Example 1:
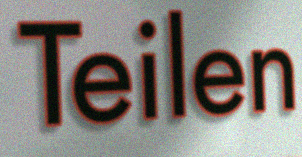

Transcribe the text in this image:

Teilen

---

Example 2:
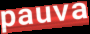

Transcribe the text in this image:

pauva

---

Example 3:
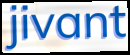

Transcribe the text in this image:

jivant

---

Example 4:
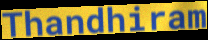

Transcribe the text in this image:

Thandhiram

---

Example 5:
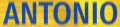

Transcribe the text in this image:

ANTONIO